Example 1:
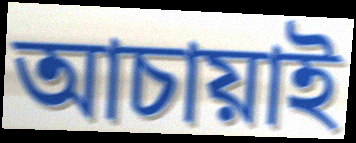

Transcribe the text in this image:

আচায়াই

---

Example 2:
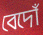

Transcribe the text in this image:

বেদোঁ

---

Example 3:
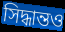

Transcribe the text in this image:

সিদ্ধান্তও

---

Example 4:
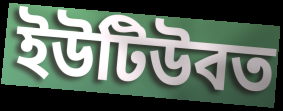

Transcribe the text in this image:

ইউটিউবত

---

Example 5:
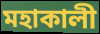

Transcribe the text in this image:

মহাকালী